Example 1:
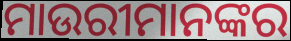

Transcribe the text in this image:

ମାଉରୀମାନଙ୍କର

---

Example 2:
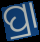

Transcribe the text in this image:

ପ୍ରା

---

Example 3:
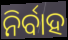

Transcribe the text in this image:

ନିର୍ବାହ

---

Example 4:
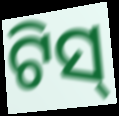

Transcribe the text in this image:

ଟିସ୍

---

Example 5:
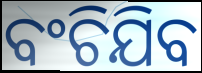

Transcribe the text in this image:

ବଂଚିଯିବ